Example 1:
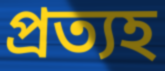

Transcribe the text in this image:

প্রত্যহ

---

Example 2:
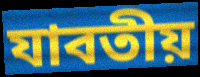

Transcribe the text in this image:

যাবতীয়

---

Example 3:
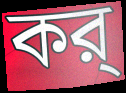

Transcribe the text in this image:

কর্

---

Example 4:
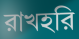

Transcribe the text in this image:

রাখহরি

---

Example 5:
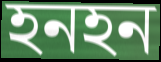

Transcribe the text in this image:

হনহন